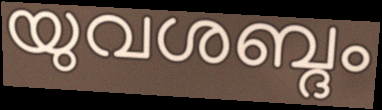
യുവശബ്ദം